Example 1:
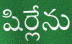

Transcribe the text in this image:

షిర్లేను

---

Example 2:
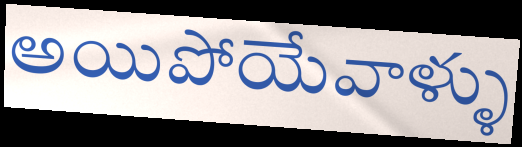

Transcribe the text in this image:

అయిపోయేవాళ్ళు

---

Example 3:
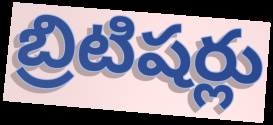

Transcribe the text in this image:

బ్రిటిషర్లు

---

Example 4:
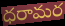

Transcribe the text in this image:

ధరామర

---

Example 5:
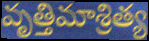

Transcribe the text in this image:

వృత్తిమాశ్రిత్య